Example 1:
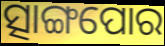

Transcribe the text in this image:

ତ୍ସାଙ୍ଗପୋର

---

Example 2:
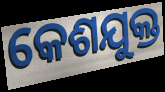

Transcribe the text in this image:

କେଶଯୁକ୍ତ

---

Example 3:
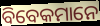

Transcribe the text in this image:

ବିବେକମାନେ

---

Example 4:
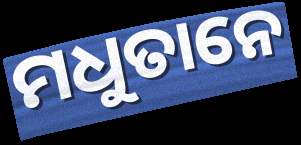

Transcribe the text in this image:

ମଧୁତାନେ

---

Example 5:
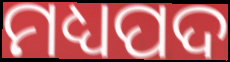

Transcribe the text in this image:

ମଧ୍ୟପଦ